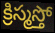
క్రిస్మస్తో